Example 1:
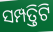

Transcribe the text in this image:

ସମ୍ପତ୍ତିଟି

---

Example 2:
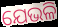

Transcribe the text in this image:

ଯେଭଳି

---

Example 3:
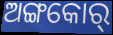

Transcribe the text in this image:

ଅଙ୍ଗକୋର୍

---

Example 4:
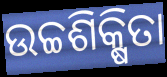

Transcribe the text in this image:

ଉଚ୍ଚଶିକ୍ଷିତା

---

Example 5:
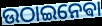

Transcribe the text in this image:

ଉଠାଇନେଵା